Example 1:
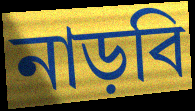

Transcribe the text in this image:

নাড়বি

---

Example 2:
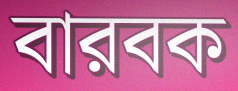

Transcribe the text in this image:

বারবক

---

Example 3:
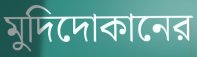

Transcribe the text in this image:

মুদিদোকানের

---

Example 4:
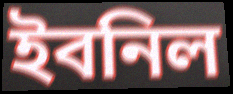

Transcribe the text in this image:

ইবনিল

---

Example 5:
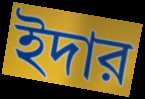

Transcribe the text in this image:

ইদার